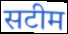
सटीम